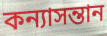
কন্যাসন্তান